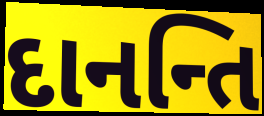
દાનન્તિ